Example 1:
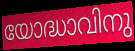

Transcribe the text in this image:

യോദ്ധാവിനു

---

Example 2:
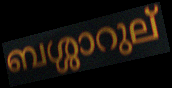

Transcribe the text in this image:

ബശ്ശാറുല്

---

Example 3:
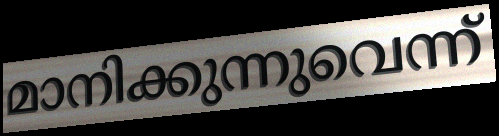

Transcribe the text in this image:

മാനിക്കുന്നുവെന്ന്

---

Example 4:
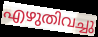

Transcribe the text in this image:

എഴുതിവച്ചു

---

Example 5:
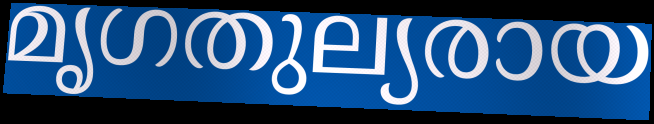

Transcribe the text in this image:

മൃഗതുല്യരായ